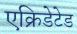
एक्रिडेटेड